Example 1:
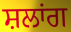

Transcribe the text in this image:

ਸ਼ਲਾਂਗ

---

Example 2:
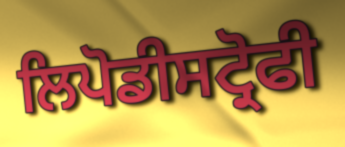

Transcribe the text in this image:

ਲਿਪੋਡੀਸਟ੍ਰੋਫੀ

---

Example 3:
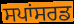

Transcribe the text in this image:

ਸਪਾਂਸਰਡ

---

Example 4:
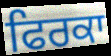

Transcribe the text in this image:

ਫਿਰਕਾ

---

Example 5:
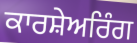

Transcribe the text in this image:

ਕਾਰਸ਼ੇਅਰਿੰਗ